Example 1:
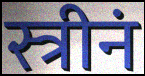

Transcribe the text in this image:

स्त्रीनं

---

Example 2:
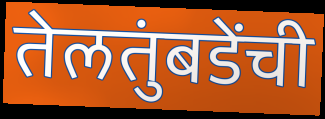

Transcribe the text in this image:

तेलतुंबडेंची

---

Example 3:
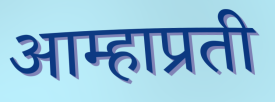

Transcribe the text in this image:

आम्हाप्रती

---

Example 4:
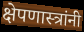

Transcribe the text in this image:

क्षेपणास्त्रांनी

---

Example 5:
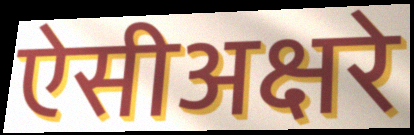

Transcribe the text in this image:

ऐसीअक्षरे